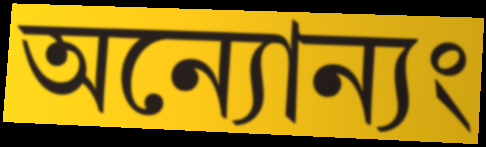
অন্যোন্যং